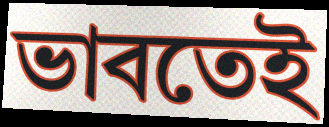
ভাবতেই